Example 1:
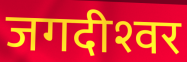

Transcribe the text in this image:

जगदीश्वर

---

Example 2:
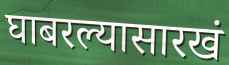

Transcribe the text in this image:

घाबरल्यासारखं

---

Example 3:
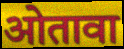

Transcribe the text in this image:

ओतावा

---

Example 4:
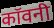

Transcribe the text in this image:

कॉवनी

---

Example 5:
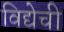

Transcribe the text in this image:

विद्येची